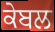
ਕੇਬਲ